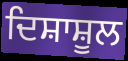
ਦਿਸ਼ਾਸ਼ੂਲ